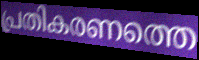
പ്രതികരണത്തെ